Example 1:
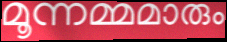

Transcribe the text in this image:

മൂന്നമ്മമാരും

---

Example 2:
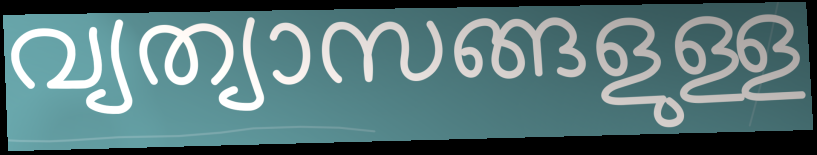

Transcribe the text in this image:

വ്യത്യാസങ്ങളുള്ള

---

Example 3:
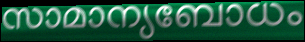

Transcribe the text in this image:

സാമാന്യബോധം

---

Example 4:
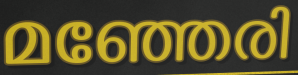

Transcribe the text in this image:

മഞ്ഞേരി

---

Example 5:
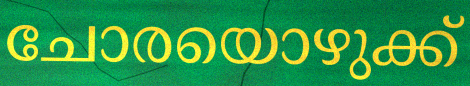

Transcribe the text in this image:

ചോരയൊഴുക്ക്